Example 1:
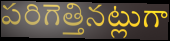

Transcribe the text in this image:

పరిగెత్తినట్లుగా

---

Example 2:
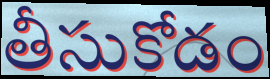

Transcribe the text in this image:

తీసుకోడం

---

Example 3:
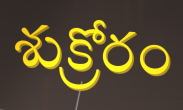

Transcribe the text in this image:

శుక్రోరం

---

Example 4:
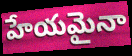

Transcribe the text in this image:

హేయమైనా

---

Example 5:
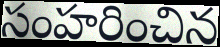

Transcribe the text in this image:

సంహరించిన